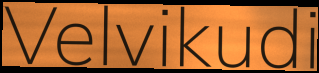
Velvikudi